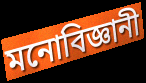
মনোবিজ্ঞানী